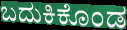
ಬದುಕಿಕೊಂಡ